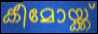
കീമോയ്ക്ക്